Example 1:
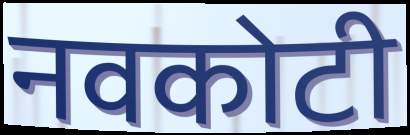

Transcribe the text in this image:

नवकोटी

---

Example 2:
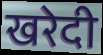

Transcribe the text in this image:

खरेदी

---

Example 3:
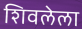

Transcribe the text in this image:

शिवलेला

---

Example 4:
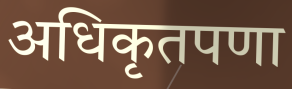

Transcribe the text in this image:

अधिकृतपणा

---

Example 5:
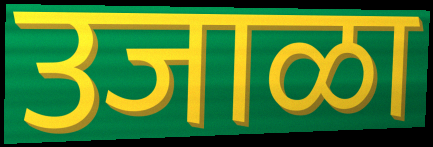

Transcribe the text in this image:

उजाळा